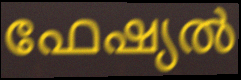
ഫേഷ്യൽ